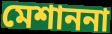
মেশাননা